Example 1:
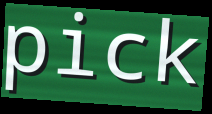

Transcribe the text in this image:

pick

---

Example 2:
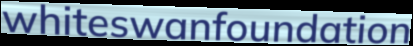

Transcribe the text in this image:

whiteswanfoundation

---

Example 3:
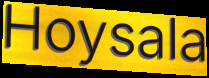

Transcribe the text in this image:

Hoysala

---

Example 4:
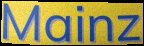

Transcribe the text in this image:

Mainz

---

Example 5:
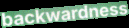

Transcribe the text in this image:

backwardness